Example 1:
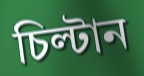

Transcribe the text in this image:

চিল্টান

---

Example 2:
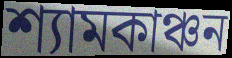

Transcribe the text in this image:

শ্যামকাঞ্চন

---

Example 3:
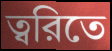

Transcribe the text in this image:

ত্বরিতে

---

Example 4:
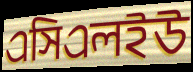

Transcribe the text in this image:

এসিএলইউ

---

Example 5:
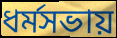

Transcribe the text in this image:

ধর্মসভায়